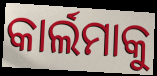
କାର୍ଲମାକୁ